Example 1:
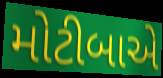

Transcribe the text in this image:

મોટીબાએ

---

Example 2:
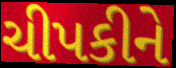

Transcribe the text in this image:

ચીપકીને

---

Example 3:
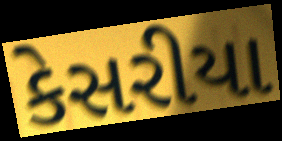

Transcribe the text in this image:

કેસરીયા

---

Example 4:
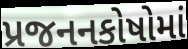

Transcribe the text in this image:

પ્રજનનકોષોમાં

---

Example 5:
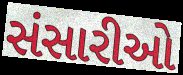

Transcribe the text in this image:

સંસારીઓ